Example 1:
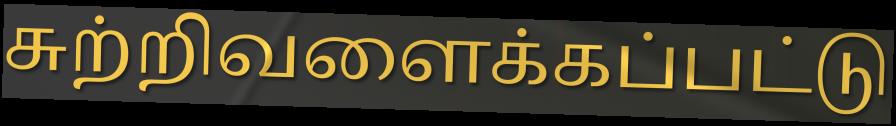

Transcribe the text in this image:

சுற்றிவளைக்கப்பட்டு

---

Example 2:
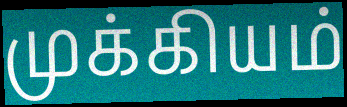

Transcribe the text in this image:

முக்கியம்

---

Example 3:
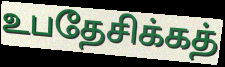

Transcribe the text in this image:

உபதேசிக்கத்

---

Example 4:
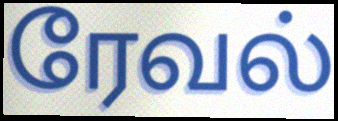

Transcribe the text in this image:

ரேவல்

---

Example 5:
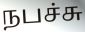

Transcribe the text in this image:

நபச்சு